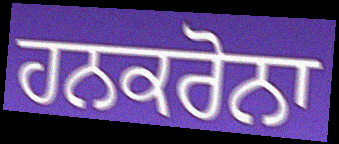
ਹਨਕਰੋਨਾ